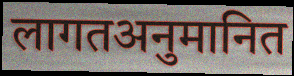
लागतअनुमानित